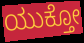
ಯುಕ್ತೋ